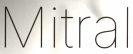
Mitral